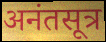
अनंतसूत्र